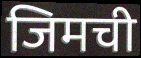
जिमची